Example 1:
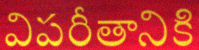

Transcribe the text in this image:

విపరీతానికి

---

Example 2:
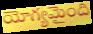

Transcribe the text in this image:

యోగ్యమైంది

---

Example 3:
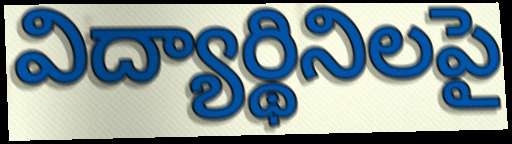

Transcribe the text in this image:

విద్యార్థినిలపై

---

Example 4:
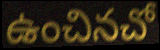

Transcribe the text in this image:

ఉంచినచో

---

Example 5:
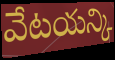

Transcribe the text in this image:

వేటయన్కి